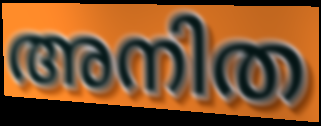
അനിത